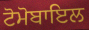
ਟੋਮੋਬਾਇਲ